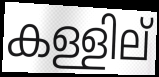
കള്ളില്